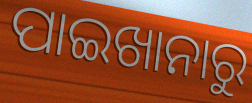
ପାଇଖାନାରୁ